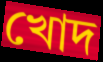
খোদ